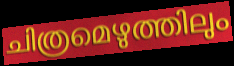
ചിത്രമെഴുത്തിലും